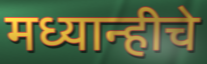
मध्यान्हीचे